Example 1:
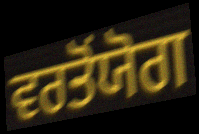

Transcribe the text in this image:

ਵਰਤੋਂਯੋਗ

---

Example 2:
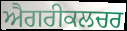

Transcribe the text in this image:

ਐਗਰੀਕਲਚਰ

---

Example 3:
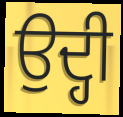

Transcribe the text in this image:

ਉਦ੍ਹੀ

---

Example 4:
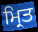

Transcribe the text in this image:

ਮ੍ਰਿਤ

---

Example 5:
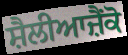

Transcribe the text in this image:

ਸ਼ੈਲੀਆਜ਼ੈਂਕੋ